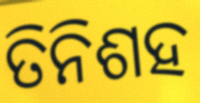
ତିନିଶହ